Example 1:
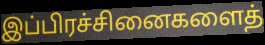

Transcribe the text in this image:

இப்பிரச்சினைகளைத்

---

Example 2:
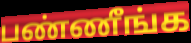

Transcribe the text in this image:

பண்ணீங்க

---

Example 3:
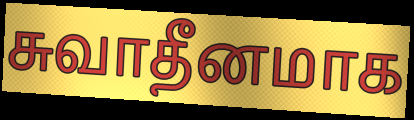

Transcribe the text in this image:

சுவாதீனமாக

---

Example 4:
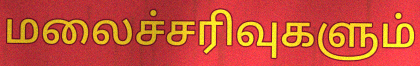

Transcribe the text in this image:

மலைச்சரிவுகளும்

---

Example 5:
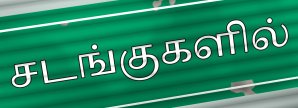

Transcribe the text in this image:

சடங்குகளில்